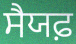
ਸੈਯਫ਼